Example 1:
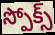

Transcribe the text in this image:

స్పోక్స్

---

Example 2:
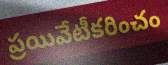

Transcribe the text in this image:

ప్రయివేటీకరించం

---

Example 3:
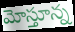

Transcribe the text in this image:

మోస్తూన్న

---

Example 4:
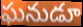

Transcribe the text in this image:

ఘనుడూ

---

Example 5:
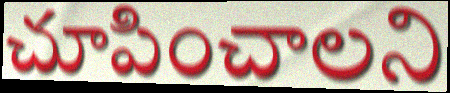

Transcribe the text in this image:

చూపించాలని